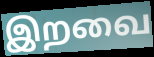
இறவை